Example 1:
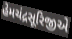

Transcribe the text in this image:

હેમચંદ્રસૂરિજીએ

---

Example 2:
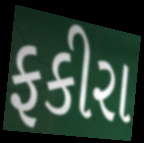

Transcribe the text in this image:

ફકીરા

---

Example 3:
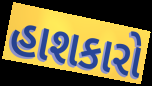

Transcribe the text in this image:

હાશકારો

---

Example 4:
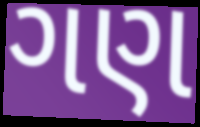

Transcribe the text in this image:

ગણ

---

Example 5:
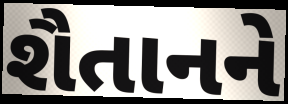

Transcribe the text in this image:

શૈતાનને